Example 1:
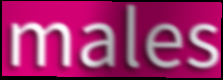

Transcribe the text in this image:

males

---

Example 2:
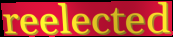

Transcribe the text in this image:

reelected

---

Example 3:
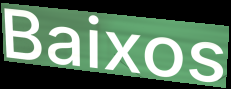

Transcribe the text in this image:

Baixos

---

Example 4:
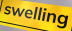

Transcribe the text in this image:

swelling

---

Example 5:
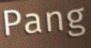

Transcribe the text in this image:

Pang